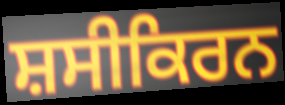
ਸ਼ਸੀਕਿਰਨ